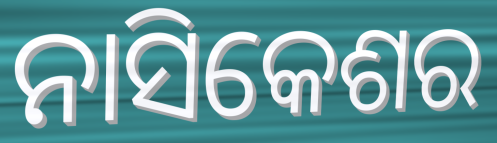
ନାସିକେଶର